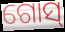
ଗୋସ୍